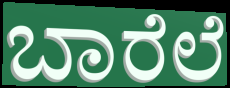
ಬಾರೆಲೆ